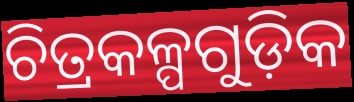
ଚିତ୍ରକଳ୍ପଗୁଡ଼ିକ